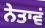
ਨੇਤਾਵਂ